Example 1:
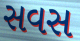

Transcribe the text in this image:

સવસ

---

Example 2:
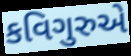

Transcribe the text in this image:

કવિગુરુએ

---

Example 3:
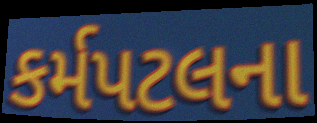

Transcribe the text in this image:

કર્મપટલના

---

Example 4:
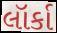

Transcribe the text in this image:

લૉર્કા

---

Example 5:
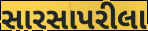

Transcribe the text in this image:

સારસાપરીલા